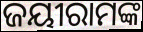
ଜୟୀରାମଙ୍କ